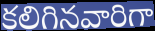
కలిగినవారిగా